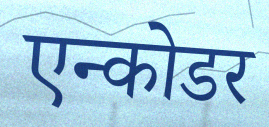
एन्कोडर